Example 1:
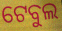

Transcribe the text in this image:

ଟେବୁଲ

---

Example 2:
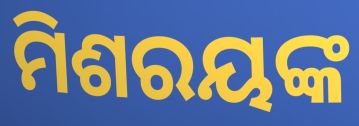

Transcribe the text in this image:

ମିଶରୟଙ୍କ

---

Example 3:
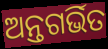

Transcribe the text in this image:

ଅନ୍ତଗର୍ଭିତ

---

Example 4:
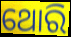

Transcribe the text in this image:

ଥୋରି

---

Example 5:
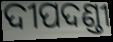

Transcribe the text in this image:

ଦୀପଦଣ୍ଡୀ